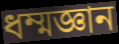
ধম্মজ্ঞান